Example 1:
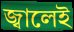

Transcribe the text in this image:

জ্বালেই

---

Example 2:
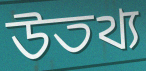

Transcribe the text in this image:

উতথ্য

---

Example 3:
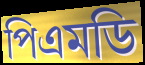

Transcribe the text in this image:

পিএমডি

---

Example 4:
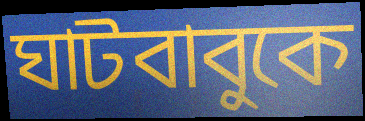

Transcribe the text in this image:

ঘাটবাবুকে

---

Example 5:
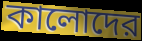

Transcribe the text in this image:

কালোদের